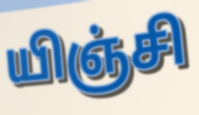
யிஞ்சி